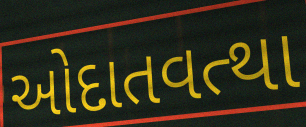
ઓદાતવત્થા